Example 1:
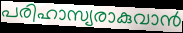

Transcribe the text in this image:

പരിഹാസ്യരാകുവാൻ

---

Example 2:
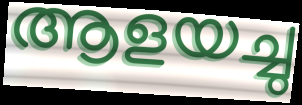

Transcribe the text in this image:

ആളയച്ചു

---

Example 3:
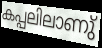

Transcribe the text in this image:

കപ്പലിലാണു്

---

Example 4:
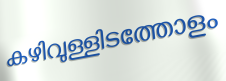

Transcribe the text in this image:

കഴിവുള്ളിടത്തോളം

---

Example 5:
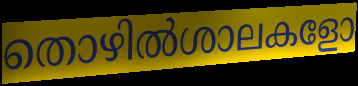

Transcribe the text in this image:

തൊഴിൽശാലകളോ